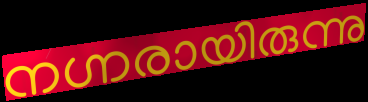
നഗ്നരായിരുന്നു